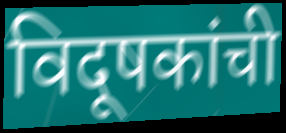
विदूषकांची